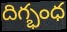
దిగ్భంధ